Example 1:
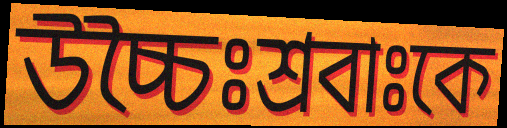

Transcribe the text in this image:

উচ্চৈঃশ্রবাঃকে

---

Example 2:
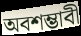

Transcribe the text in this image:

অবশম্ভাবী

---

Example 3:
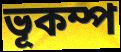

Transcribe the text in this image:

ভূকম্প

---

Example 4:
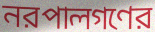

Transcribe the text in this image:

নরপালগণের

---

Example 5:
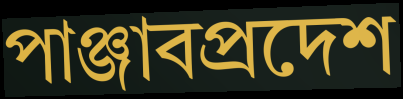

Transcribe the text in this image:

পাঞ্জাবপ্রদেশ